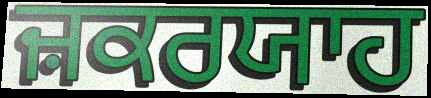
ਜ਼ਕਰਯਾਹ